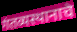
गंतव्यस्थानाचे